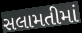
સલામતીમાં